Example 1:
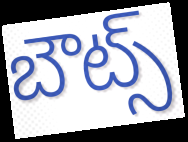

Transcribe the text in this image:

బౌట్స్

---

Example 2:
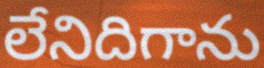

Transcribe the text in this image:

లేనిదిగాను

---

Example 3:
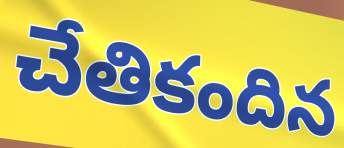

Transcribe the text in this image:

చేతికందిన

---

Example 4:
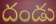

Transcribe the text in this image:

దండు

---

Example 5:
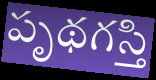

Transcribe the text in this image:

పృథగస్తి